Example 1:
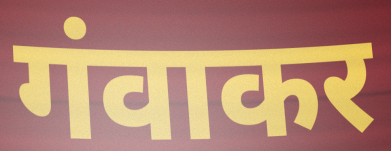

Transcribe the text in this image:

गंवाकर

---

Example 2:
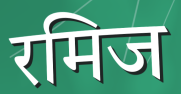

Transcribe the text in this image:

रमिज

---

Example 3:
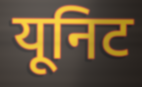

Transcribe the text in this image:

यूनिट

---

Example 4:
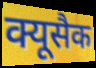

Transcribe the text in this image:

क्यूसैक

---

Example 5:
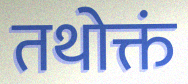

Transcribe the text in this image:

तथोक्तं